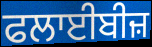
ਫਲਾਈਬੀਜ਼